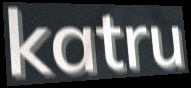
katru